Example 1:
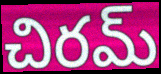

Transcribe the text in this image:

చిరమ్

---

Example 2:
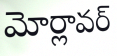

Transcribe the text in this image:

మోర్లావర్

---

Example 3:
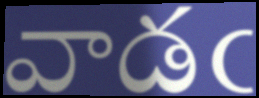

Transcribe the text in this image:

వాడఁ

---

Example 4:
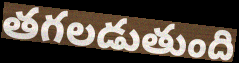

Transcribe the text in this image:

తగలడుతుంది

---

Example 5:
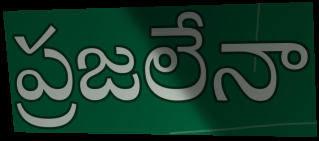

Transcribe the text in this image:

ప్రజలేనా